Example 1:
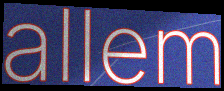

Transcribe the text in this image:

allem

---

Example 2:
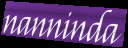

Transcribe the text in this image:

nanninda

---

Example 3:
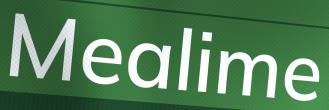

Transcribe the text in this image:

Mealime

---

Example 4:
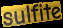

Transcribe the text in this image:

sulfite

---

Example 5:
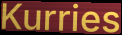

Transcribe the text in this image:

Kurries